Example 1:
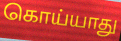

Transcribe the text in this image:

கொய்யாது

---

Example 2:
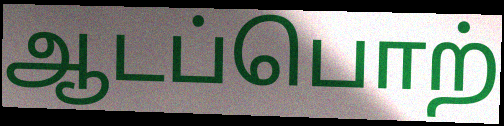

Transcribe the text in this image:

ஆடப்பொற்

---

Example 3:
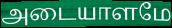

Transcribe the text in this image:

அடையாளமே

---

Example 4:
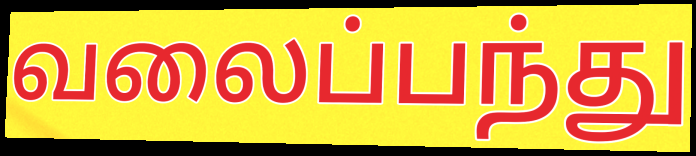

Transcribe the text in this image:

வலைப்பந்து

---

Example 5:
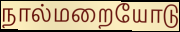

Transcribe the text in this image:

நால்மறையோடு